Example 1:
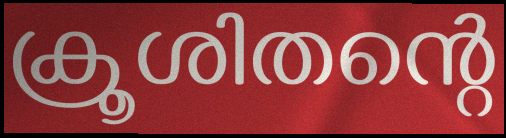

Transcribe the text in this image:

ക്രൂശിതന്റെ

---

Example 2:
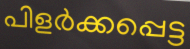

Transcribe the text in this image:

പിളർക്കപ്പെട്ട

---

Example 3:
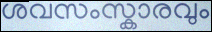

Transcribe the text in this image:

ശവസംസ്കാരവും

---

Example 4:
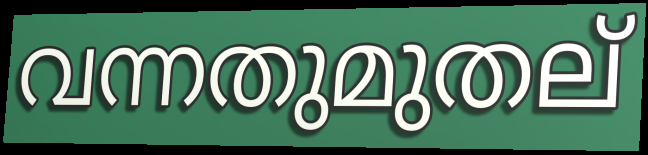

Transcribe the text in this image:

വന്നതുമുതല്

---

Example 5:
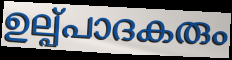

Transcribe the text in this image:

ഉല്പ്പാദകരും